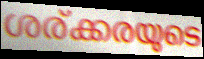
ശര്ക്കരയുടെ